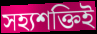
সহ্যশক্তিই